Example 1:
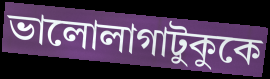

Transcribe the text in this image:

ভালোলাগাটুকুকে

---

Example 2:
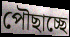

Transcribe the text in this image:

পৌছাচ্ছে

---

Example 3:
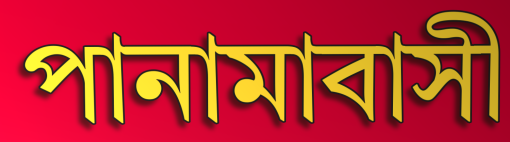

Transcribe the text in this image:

পানামাবাসী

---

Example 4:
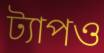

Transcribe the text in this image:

ট্যাপও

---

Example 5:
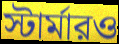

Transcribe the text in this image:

স্টার্মারও